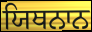
ਯਿਥਨਾਨ